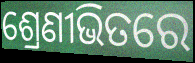
ଶ୍ରେଣୀଭିତରେ